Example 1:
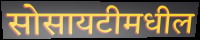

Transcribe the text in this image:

सोसायटीमधील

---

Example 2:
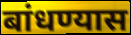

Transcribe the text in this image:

बांधण्यास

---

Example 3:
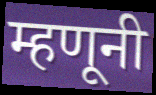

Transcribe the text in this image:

म्हणूनी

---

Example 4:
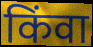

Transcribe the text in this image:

किंवा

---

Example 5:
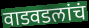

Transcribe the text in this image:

वाडवडलांचं